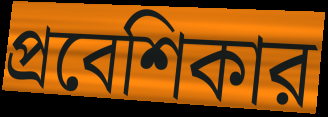
প্রবেশিকার